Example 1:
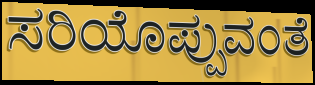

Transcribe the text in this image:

ಸರಿಯೊಪ್ಪುವಂತೆ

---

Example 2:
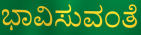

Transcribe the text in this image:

ಭಾವಿಸುವಂತೆ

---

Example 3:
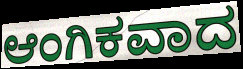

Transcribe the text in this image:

ಆಂಗಿಕವಾದ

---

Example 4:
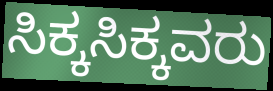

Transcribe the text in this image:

ಸಿಕ್ಕಸಿಕ್ಕವರು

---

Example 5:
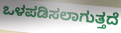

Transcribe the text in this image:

ಒಳಪಡಿಸಲಾಗುತ್ತದೆ